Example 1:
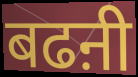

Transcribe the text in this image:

बढऩी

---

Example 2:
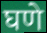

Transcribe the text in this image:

घणे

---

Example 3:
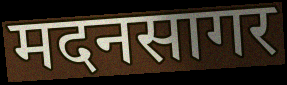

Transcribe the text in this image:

मदनसागर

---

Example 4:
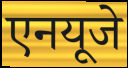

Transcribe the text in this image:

एनयूजे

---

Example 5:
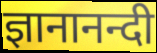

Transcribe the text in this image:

ज्ञानानन्दी